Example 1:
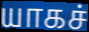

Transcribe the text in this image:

யாகச்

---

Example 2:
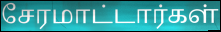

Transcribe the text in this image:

சேரமாட்டார்கள்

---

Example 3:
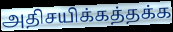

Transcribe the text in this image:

அதிசயிக்கத்தக்க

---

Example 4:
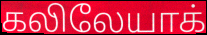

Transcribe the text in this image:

கலிலேயாக்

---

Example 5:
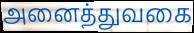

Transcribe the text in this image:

அனைத்துவகை